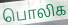
பொலிக